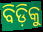
ବିଡ଼ିକୁ